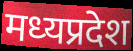
मध्‍यप्रदेश